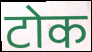
टोक